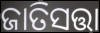
ଜାତିସତ୍ତା